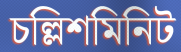
চল্লিশমিনিট